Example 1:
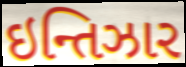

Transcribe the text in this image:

ઇન્તિઝાર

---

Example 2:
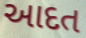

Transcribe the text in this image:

આદત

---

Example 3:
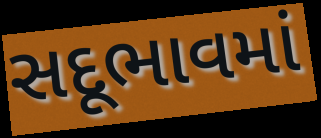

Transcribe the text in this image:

સદૂભાવમાં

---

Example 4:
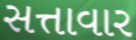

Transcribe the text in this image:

સત્તાવાર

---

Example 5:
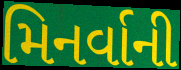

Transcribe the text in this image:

મિનર્વાની